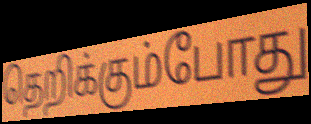
தெறிக்கும்போது